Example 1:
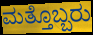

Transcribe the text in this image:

ಮತ್ತೊಬ್ಬರು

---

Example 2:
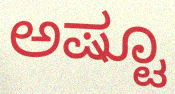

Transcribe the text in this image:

ಅಷ್ಟೂ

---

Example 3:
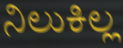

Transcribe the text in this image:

ನಿಲುಕಿಲ್ಲ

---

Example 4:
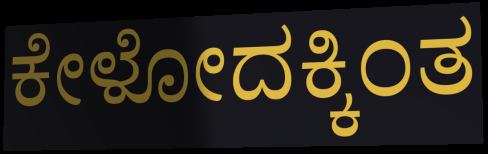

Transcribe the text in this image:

ಕೇಳೋದಕ್ಕಿಂತ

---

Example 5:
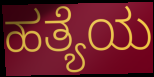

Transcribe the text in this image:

ಹತ್ಯೆಯ